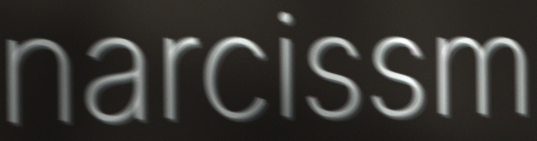
narcissm